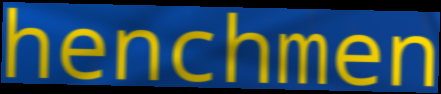
henchmen